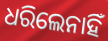
ଧରିଲେନାହିଁ